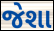
જેશા